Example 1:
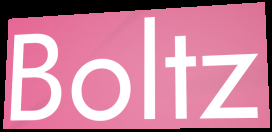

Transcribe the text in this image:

Boltz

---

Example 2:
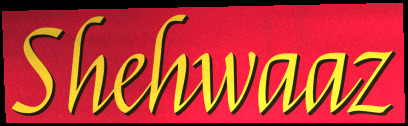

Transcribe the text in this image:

Shehwaaz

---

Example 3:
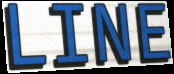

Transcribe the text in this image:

LINE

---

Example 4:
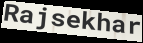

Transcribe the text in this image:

Rajsekhar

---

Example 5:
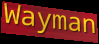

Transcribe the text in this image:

Wayman